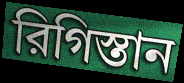
রিগিস্তান